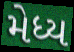
મેધ્ય